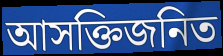
আসক্তিজনিত